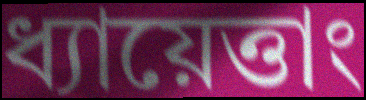
ধ্যায়েত্তাং